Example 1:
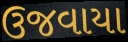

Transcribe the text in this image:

ઉજવાયા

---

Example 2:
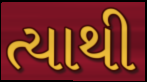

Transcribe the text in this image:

ત્યાથી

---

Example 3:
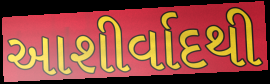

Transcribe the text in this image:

આશીર્વાદથી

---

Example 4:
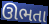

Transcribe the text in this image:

ઊભતા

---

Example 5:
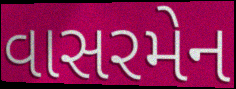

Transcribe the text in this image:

વાસરમેન